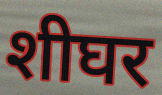
शीघर